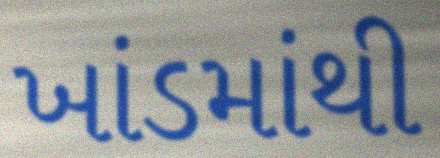
ખાંડમાંથી